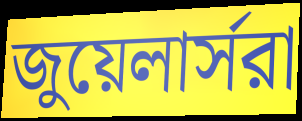
জুয়েলার্সরা